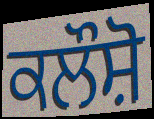
ਕਲੌਸ਼ੋ